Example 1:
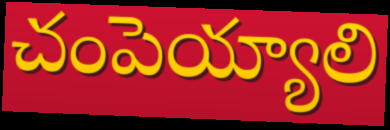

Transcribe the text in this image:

చంపెయ్యాలి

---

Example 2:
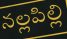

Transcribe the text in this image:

నల్లపిల్లి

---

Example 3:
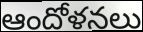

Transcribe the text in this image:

ఆందోళనలు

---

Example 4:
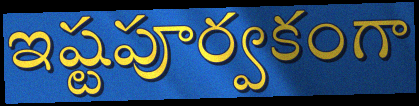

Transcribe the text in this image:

ఇష్టపూర్వకంగా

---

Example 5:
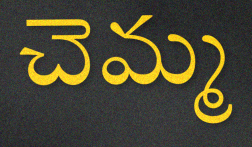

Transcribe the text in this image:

చెమ్మ